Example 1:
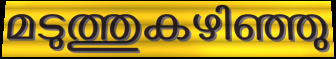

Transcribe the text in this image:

മടുത്തുകഴിഞ്ഞു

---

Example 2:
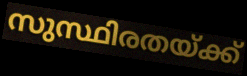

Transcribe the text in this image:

സുസ്ഥിരതയ്ക്ക്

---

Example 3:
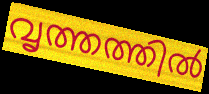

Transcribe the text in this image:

വൃത്തത്തിൽ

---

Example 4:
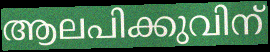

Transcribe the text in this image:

ആലപിക്കുവിന്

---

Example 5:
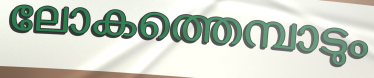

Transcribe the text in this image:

ലോകത്തെമ്പാടും